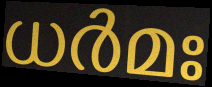
ധർമഃ